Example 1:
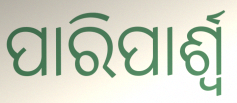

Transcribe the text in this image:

ପାରିପାର୍ଶ୍ୱ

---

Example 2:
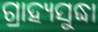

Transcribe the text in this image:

ଗ୍ରାହ୍ୟସୁଦ୍ଧା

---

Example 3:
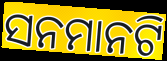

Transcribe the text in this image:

ସନମାନଟି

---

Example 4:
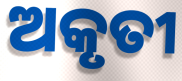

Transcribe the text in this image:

ଅକୃତୀ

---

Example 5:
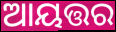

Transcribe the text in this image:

ଆୟତ୍ତର